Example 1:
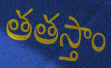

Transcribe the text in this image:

తతస్తాం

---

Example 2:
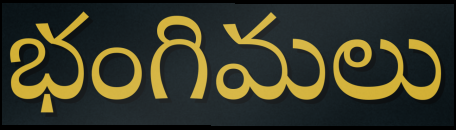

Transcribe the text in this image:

భంగిమలు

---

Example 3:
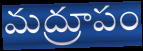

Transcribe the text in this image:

మద్రూపం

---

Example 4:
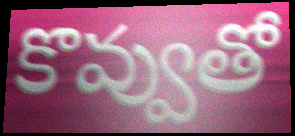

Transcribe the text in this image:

కొవ్వుతో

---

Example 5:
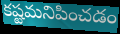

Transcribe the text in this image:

కష్టమనిపించడం